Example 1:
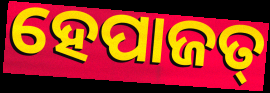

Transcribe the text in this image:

ହେପାଜତ୍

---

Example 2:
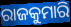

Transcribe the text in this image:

ରାଜକୁମାରି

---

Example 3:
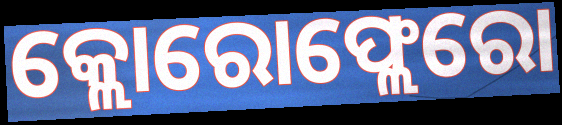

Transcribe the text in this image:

କ୍ଲୋରୋଫ୍ଲେରୋ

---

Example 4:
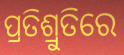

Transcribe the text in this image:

ପ୍ରତିଶ୍ରୁତିରେ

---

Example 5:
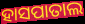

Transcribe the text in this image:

ହାସପାତାଲ